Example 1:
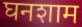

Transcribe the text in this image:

घनशाम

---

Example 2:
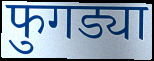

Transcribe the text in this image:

फुगड्या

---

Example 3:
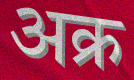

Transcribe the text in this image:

अक्र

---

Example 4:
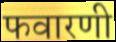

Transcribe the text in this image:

फवारणी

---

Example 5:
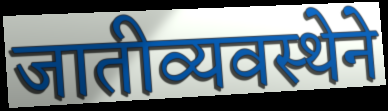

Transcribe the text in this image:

जातीव्यवस्थेने